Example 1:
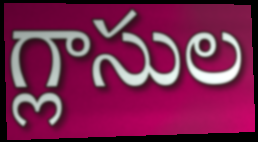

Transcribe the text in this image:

గ్లాసుల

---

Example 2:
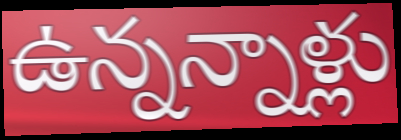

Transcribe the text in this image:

ఉన్నన్నాళ్లు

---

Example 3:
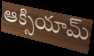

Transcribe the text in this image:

ఆక్సియామ్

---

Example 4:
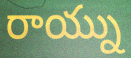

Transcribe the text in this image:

రాయ్ను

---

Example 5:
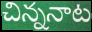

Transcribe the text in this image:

చిన్ననాట